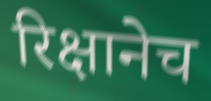
रिक्षानेच